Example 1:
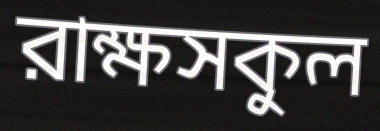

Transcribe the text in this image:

রাক্ষসকুল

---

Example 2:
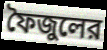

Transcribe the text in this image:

ফৈজুলের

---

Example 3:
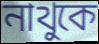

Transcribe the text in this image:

নাথুকে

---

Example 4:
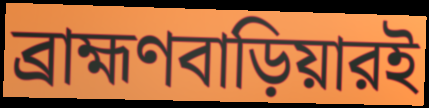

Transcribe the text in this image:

ব্রাহ্মণবাড়িয়ারই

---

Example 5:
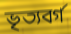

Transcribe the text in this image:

ভৃত্যবর্গ